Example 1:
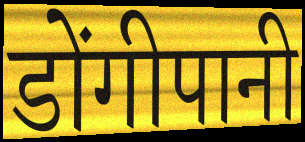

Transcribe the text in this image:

डोंगीपानी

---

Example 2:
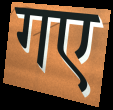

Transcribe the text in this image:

गए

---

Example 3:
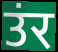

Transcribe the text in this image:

उंर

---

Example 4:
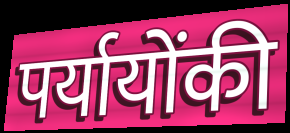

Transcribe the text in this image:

पर्यायोंकी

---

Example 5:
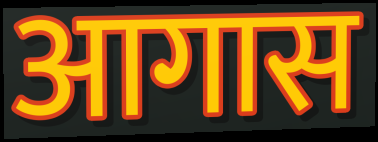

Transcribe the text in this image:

आगास